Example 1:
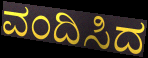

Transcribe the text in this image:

ವಂದಿಸಿದ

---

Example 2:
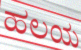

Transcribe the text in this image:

ಹಲಯ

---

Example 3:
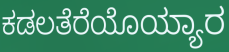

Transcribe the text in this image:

ಕಡಲತೆರೆಯೊಯ್ಯಾರ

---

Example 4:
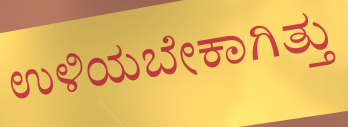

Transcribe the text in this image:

ಉಳಿಯಬೇಕಾಗಿತ್ತು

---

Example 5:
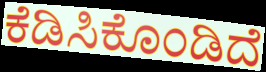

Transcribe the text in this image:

ಕೆಡಿಸಿಕೊಂಡಿದೆ